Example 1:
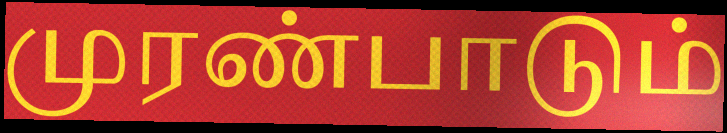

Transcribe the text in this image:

முரண்பாடும்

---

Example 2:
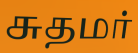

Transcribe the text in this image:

சுதமர்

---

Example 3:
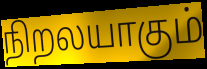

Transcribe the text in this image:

நிறலயாகும்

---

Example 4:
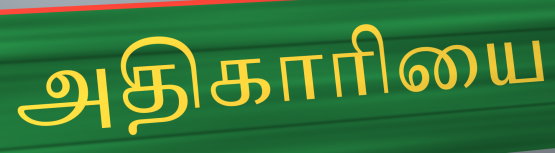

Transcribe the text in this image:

அதிகாரியை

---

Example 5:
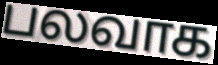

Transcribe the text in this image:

பலவாக